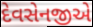
દેવસેનજીએ